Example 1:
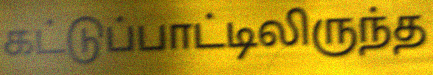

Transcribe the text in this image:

கட்டுப்பாட்டிலிருந்த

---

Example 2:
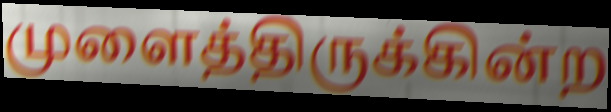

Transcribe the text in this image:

முளைத்திருக்கின்ற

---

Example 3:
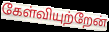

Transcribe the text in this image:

கேள்வியுற்றேன்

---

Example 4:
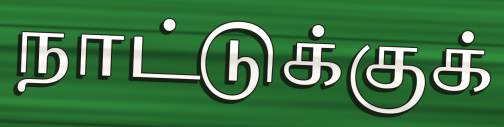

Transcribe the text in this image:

நாட்டுக்குக்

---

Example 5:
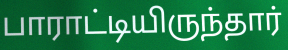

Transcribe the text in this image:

பாராட்டியிருந்தார்